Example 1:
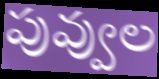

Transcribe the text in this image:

పువ్వుల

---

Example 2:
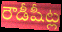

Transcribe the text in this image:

రౌడీషీట్ల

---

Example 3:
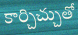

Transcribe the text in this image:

కార్చిచ్చుతో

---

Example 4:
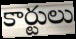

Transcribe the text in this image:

కార్టులు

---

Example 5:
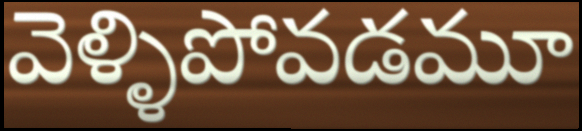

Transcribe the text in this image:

వెళ్ళిపోవడమూ